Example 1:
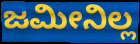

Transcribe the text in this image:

ಜಮೀನಿಲ್ಲ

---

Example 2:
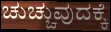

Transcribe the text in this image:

ಚುಚ್ಚುವುದಕ್ಕೆ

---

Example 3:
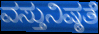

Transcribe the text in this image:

ವಸ್ತುನಿಷ್ಠತೆ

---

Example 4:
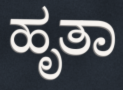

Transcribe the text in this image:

ಹೃತಾ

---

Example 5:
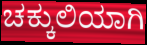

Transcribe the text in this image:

ಚಕ್ಕುಲಿಯಾಗಿ